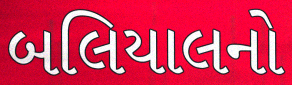
બલિયાલનો